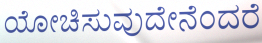
ಯೋಚಿಸುವುದೇನೆಂದರೆ